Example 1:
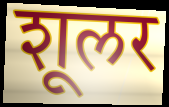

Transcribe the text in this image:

शूलर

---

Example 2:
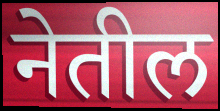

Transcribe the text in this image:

नेतील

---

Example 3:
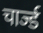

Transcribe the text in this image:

चार्ज्ड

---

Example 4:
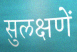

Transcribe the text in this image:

सुलक्षणें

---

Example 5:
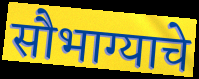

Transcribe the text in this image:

सौभाग्याचे